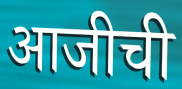
आजीची